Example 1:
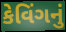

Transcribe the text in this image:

કેવિંગનું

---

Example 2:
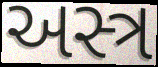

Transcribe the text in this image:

અસ્ત્ર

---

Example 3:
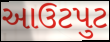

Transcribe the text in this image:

આઉટપુટ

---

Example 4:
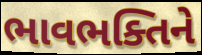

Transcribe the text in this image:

ભાવભક્તિને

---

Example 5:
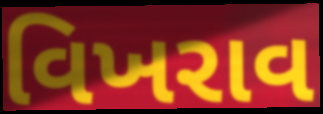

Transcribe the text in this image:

વિખરાવ